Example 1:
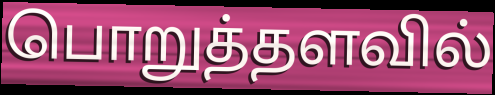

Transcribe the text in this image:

பொறுத்தளவில்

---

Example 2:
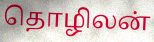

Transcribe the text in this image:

தொழிலன்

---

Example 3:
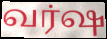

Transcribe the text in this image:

வர்ஷ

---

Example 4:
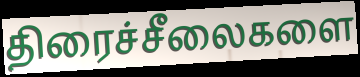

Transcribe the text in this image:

திரைச்சீலைகளை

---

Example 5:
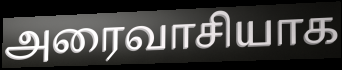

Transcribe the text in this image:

அரைவாசியாக